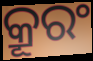
କ୍ରୂରଂ